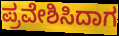
ಪ್ರವೇಶಿಸಿದಾಗ